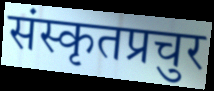
संस्कृतप्रचुर